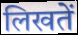
लिखतें